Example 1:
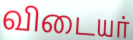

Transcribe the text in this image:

விடையர்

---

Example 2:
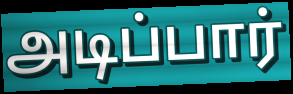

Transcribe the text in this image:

அடிப்பார்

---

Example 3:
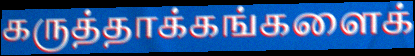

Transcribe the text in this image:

கருத்தாக்கங்களைக்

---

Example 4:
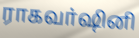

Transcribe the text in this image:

ராகவர்ஷினி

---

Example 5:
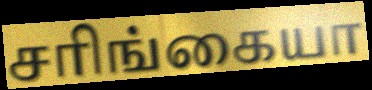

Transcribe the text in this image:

சரிங்கையா